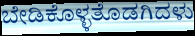
ಬೇಡಿಕೊಳ್ಳತೊಡಗಿದಳು